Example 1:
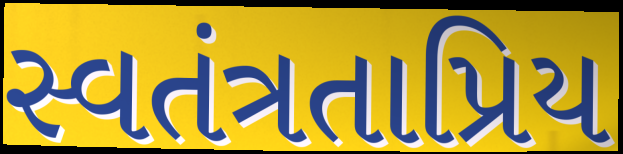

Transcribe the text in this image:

સ્વતંત્રતાપ્રિય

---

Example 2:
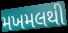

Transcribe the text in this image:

મખમલથી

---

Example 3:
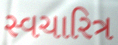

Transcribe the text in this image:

સ્વચારિત્ર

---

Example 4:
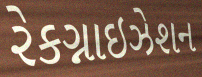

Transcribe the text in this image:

રેકગ્નાઇઝેશન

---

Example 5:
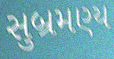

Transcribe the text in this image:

સુબ્રમણ્ય